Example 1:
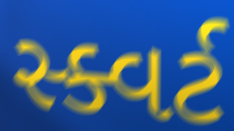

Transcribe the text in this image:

સ્ક્વર્ટ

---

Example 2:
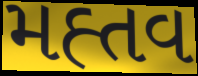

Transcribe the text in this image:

મહ્તવ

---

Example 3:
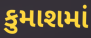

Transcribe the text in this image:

કુમાશમાં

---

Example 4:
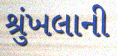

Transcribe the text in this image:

શ્રુંખલાની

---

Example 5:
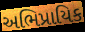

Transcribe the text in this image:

અભિપ્રાયિક